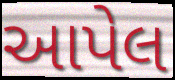
આપેલ